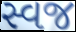
સ્વજ